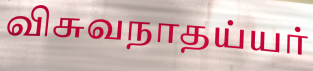
விசுவநாதய்யர்